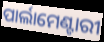
ପାର୍ଲାମେଣ୍ଟାରୀ